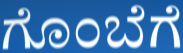
ಗೊಂಬೆಗೆ